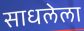
साधलेला